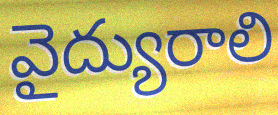
వైద్యురాలి